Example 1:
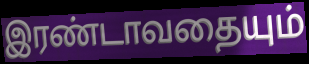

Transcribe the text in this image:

இரண்டாவதையும்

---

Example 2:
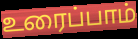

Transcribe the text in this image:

உரைப்பாம்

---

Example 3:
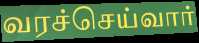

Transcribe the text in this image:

வரச்செய்வார்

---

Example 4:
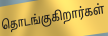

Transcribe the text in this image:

தொடங்குகிறார்கள்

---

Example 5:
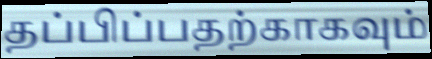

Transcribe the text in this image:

தப்பிப்பதற்காகவும்